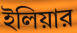
ইলিয়ার